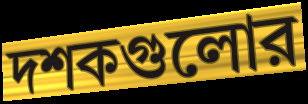
দশকগুলোর